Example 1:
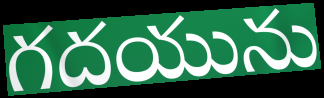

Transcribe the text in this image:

గదయును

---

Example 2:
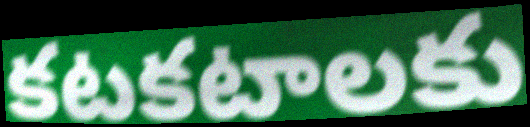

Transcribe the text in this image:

కటకటాలకు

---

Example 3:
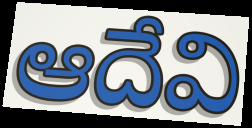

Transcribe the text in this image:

ఆదేవి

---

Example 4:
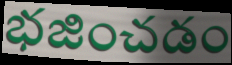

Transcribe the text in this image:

భజించడం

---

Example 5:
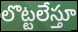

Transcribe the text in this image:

లొట్టలేస్తూ